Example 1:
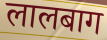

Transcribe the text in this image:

लालबाग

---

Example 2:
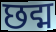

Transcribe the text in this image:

छद्म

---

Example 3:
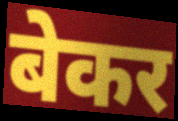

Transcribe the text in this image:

बेकर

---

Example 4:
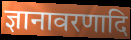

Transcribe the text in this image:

ज्ञानावरणादि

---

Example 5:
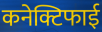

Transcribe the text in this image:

कनेक्टिफाई